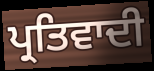
ਪ੍ਰਤਿਵਾਦੀ